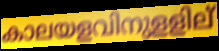
കാലയളവിനുളളില്